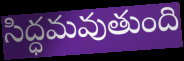
సిద్ధమవుతుంది